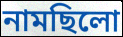
নামছিলো